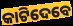
କାଟିଦେବେ